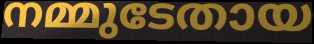
നമ്മുടേതായ